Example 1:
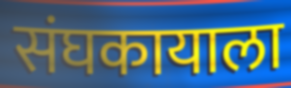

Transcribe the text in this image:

संघकायाला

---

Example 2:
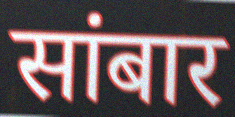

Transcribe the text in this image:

सांबार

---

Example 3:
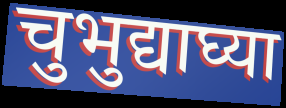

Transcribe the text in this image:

चुभुद्याघ्या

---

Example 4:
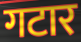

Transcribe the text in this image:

गटार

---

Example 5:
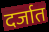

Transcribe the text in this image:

दर्जात